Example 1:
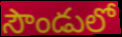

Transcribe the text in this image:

సౌండులో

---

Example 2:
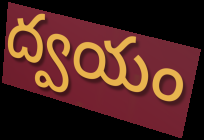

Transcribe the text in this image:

ద్వయం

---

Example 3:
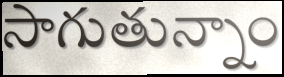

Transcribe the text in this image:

సాగుతున్నాం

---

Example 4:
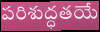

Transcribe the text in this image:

పరిశుద్ధతయే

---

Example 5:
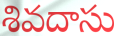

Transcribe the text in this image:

శివదాసు